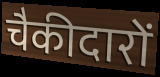
चैकीदारों